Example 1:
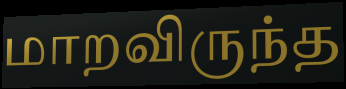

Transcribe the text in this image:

மாறவிருந்த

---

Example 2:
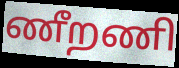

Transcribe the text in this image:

ணீறணி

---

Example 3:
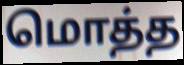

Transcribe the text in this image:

மொத்த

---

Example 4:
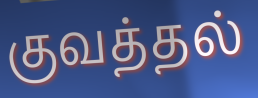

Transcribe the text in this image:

குவத்தல்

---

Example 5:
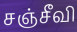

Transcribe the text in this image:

சஞ்சீவி